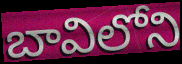
బావిలోని